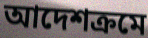
আদেশক্রমে